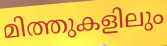
മിത്തുകളിലും